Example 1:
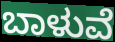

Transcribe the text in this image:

ಬಾಳುವೆ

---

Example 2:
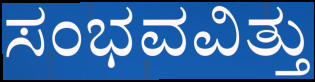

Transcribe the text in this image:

ಸಂಭವವಿತ್ತು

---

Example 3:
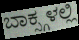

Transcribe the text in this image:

ಬಾಕ್ಸ್ಗಳಲ್ಲಿ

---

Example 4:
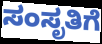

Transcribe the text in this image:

ಸಂಸೃತಿಗೆ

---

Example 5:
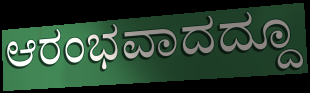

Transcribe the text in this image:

ಆರಂಭವಾದದ್ದೂ